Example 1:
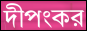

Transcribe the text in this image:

দীপংকর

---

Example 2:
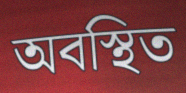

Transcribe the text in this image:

অবস্থিত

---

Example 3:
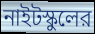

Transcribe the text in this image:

নাইটস্কুলের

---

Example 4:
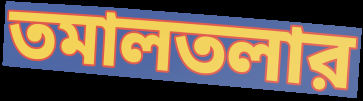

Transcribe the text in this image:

তমালতলার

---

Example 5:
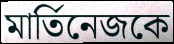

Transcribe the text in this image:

মার্তিনেজকে